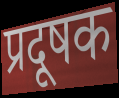
प्रदूषक